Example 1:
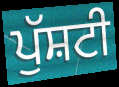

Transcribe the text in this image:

ਪੁੱਸ਼ਟੀ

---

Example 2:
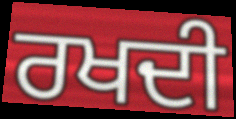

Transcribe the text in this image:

ਰਖਦੀ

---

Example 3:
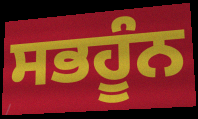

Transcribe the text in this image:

ਸਭਹੂੰਨ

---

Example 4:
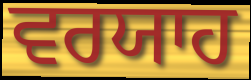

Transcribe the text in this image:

ਵਰਯਾਹ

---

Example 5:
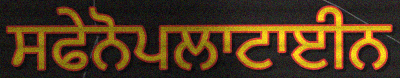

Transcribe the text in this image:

ਸਫੇਨੋਪਲਾਟਾਈਨ